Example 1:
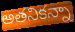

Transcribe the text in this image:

అతనికన్నా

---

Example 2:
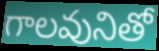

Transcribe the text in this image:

గాలవునితో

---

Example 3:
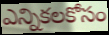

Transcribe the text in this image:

ఎన్నికలకోసం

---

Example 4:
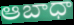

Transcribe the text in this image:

ఆబాధా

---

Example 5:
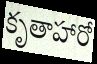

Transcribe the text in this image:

కృతాహారో